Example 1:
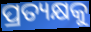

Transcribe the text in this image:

ପ୍ରତ୍ୟକ୍ଷକୁ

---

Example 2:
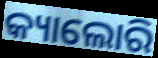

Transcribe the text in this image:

କ୍ୟାଲୋରି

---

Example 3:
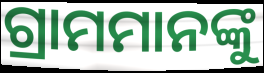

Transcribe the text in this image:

ଗ୍ରାମମାନଙ୍କୁ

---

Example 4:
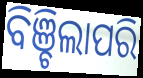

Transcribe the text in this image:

ବିଞ୍ଚିଲାପରି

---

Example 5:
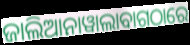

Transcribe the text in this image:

ଜାଲିଆନାୱାଲାବାଗଠାରେ